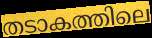
തടാകത്തിലെ